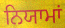
ਨਿਯਾਮਾਂ